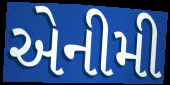
એનીમી